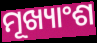
ମୂଖ୍ୟାଂଶ